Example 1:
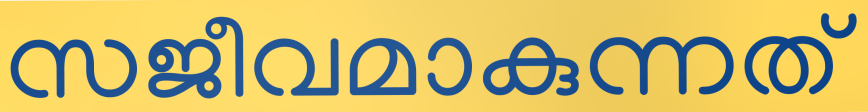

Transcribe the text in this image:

സജീവമാകുന്നത്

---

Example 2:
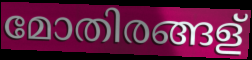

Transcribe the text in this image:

മോതിരങ്ങള്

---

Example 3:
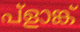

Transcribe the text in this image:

പ്ളാങ്ക്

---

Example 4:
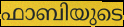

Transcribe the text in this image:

ഫാബിയുടെ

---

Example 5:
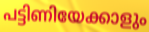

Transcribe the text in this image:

പട്ടിണിയേക്കാളും